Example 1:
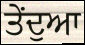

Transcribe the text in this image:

ਤੇਂਦੁਆ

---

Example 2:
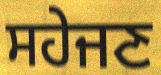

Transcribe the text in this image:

ਸਹੇਜਣ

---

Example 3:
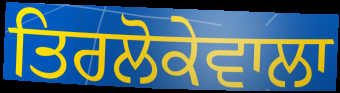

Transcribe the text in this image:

ਤਿਰਲੋਕੇਵਾਲਾ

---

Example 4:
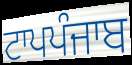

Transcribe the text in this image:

ਟਾਪਪੰਜਾਬ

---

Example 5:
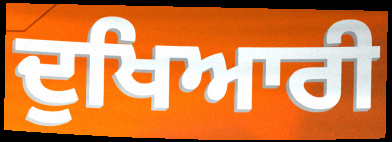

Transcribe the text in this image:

ਦੁਖਿਆਰੀ